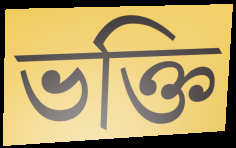
ভক্তি